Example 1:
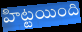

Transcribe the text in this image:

హిట్టయింది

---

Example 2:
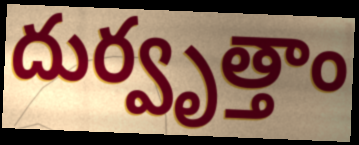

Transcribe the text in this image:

దుర్వృత్తాం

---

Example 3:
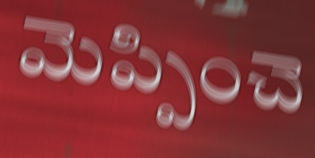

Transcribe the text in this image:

మెప్పించె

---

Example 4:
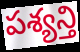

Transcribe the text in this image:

పశ్యన్తి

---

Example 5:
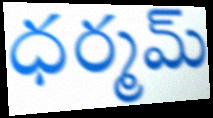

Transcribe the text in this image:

ధర్మమ్